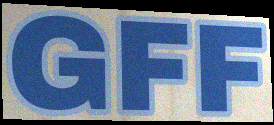
GFF